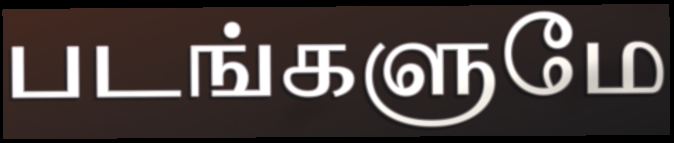
படங்களுமே